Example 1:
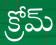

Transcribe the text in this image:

క్రోమ్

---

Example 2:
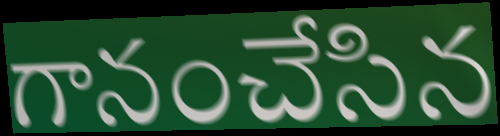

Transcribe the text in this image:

గానంచేసిన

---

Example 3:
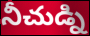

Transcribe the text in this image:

నీచుడ్ని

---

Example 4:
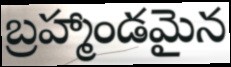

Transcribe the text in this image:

బ్రహ్మాండమైన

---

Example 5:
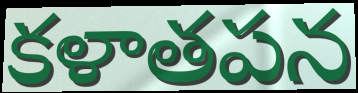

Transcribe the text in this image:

కళాతపన